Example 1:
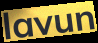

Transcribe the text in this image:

lavun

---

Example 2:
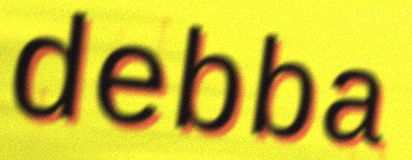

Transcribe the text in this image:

debba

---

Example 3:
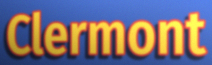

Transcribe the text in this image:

Clermont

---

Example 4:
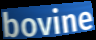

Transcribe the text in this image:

bovine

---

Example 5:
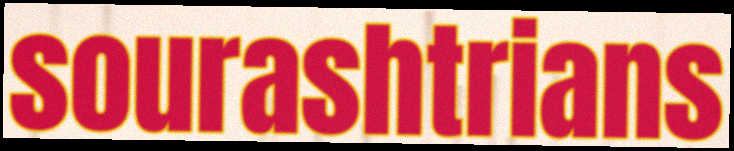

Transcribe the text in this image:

sourashtrians